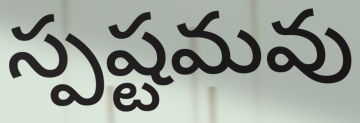
స్పష్టమవు